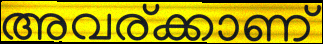
അവര്ക്കാണ്